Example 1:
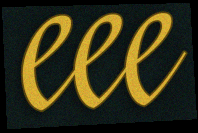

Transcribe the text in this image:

eee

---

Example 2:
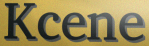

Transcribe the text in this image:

Kcene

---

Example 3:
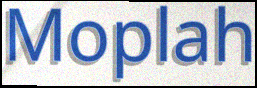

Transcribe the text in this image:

Moplah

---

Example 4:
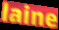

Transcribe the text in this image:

laine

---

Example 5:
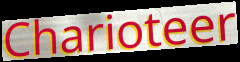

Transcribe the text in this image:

Charioteer